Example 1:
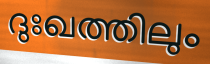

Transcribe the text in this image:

ദുഃഖത്തിലും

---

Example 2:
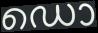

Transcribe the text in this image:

ഡൊ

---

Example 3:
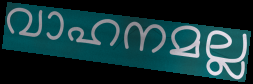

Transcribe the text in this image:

വാഹനമല്ല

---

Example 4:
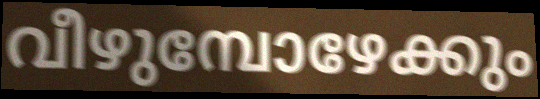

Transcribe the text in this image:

വീഴുമ്പോഴേക്കും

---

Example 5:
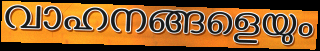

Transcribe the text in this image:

വാഹനങ്ങളെയും